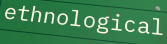
ethnological